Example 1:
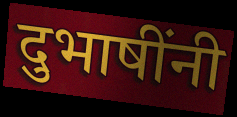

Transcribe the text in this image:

दुभाषींनी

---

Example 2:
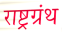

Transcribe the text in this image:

राष्ट्रग्रंथ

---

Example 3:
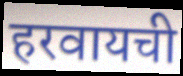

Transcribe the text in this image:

हरवायची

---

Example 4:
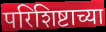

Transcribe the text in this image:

परिशिष्टाच्या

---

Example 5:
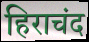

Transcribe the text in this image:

हिराचंद